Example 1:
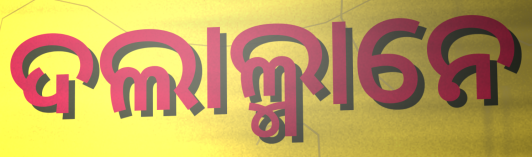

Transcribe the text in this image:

ଦଲାଲ୍ମାନେ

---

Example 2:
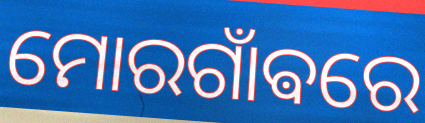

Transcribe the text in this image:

ମୋରଗାଁଵରେ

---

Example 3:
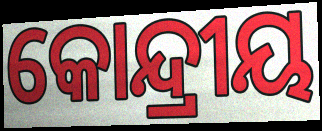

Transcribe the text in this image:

କୋନ୍ଦ୍ରୀୟ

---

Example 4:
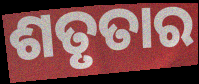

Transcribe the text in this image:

ଶତୃତାର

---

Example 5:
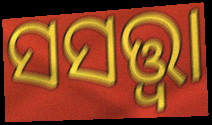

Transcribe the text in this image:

ସସତ୍ତ୍ୱା